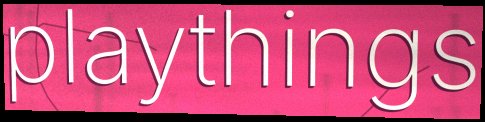
playthings